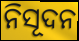
ନିସୂଦନ